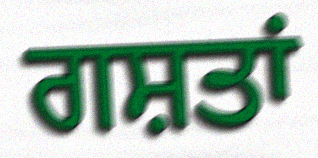
ਗਸ਼ਤਾਂ